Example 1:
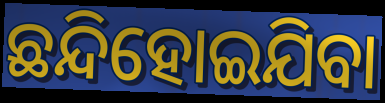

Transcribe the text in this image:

ଛନ୍ଦିହୋଇଯିବା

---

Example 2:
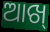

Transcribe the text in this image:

ଆଖ୍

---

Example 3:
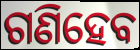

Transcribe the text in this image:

ଗଣିହେବ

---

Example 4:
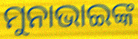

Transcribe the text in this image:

ମୁନାଭାଇଙ୍କ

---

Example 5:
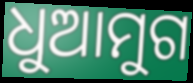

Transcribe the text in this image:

ଧୁଆମୁଗ